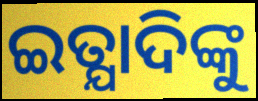
ଇତ୍ଯାଦିଙ୍କୁ